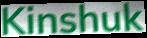
Kinshuk